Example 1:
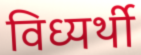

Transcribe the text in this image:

विध्यर्थी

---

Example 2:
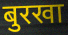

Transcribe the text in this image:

बुरखा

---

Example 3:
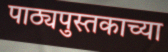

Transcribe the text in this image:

पाठ्यपुस्तकाच्या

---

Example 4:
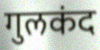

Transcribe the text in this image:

गुलकंद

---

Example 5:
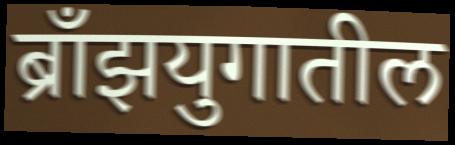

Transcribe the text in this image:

ब्राँझयुगातील